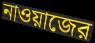
নাওয়াজের